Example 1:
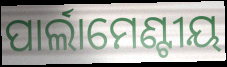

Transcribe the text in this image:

ପାର୍ଲାମେଣ୍ଟୀୟ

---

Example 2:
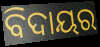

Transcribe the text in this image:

ବିଦାୟର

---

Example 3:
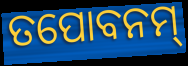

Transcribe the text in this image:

ତପୋବନମ୍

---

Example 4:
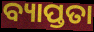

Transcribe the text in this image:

ବ୍ୟାପ୍ତତା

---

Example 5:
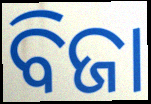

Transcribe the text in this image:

ବିଜା